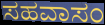
ಸಹವಾಸಂ